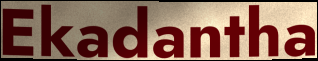
Ekadantha